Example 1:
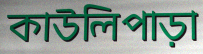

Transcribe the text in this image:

কাউলিপাড়া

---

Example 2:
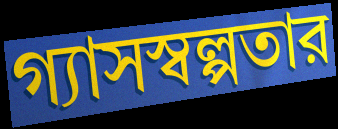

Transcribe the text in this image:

গ্যাসস্বল্পতার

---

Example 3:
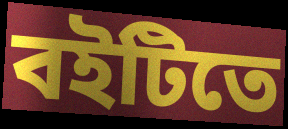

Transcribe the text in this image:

বইটিতে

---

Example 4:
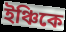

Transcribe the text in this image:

ইঞ্চিকে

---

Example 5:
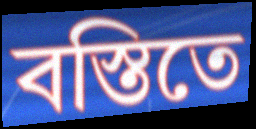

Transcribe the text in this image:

বস্তিতে